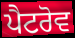
ਪੈਟਰੋਵ